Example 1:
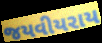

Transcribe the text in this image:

જયવીયરાય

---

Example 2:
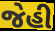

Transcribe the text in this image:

જેહી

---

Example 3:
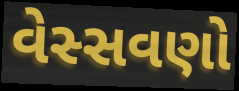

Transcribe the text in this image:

વેસ્સવણો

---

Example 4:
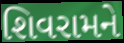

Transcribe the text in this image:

શિવરામને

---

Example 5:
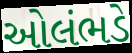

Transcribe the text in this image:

ઓલંભડે